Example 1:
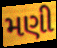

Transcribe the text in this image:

મણી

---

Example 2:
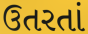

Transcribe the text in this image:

ઉતરતાં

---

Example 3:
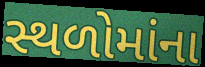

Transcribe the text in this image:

સ્થળોમાંના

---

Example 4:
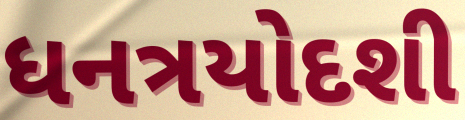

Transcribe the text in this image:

ધનત્રયોદશી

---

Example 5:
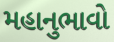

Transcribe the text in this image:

મહાનુભાવો